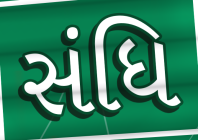
સંધિ